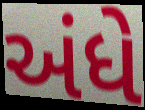
અંધે